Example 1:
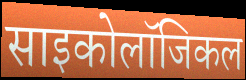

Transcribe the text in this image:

साइकोलॉजिकल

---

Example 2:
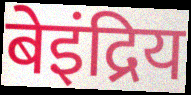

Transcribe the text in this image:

बेइंद्रिय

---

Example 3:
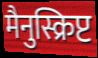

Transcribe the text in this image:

मैनुस्क्रिप्ट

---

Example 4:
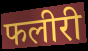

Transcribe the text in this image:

फलीरी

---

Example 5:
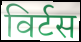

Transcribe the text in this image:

विर्टस